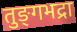
तुङ्गभद्रा